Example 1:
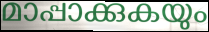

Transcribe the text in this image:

മാപ്പാക്കുകയും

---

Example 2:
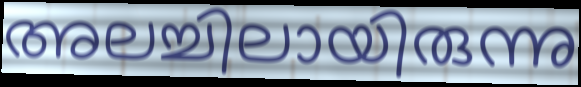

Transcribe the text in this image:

അലച്ചിലായിരുന്നു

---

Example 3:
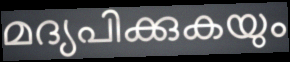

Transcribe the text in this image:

മദ്യപിക്കുകയും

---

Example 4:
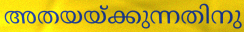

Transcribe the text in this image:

അതയയ്ക്കുന്നതിനു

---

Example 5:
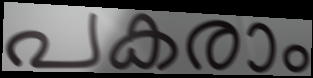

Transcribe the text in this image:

പകരാം